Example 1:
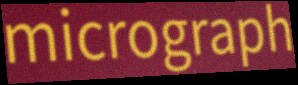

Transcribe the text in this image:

micrograph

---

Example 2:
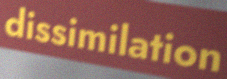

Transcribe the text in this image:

dissimilation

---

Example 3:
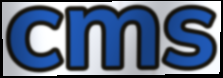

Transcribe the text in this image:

cms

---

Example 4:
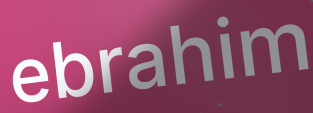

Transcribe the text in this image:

ebrahim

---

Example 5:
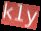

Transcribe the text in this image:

kly